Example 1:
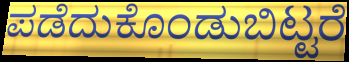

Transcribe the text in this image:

ಪಡೆದುಕೊಂಡುಬಿಟ್ಟರೆ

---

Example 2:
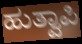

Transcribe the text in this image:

ಹುತ್ವಾಪಿ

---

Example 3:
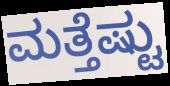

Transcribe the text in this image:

ಮತ್ತೆಷ್ಟು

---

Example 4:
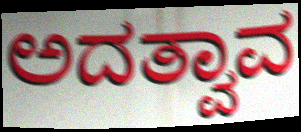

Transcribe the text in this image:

ಅದತ್ವಾವ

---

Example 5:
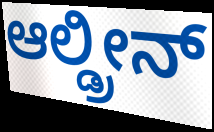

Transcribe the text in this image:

ಆಲ್ಡ್ರೀನ್